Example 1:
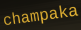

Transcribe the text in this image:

champaka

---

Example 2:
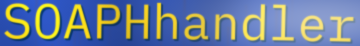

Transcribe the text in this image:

SOAPHhandler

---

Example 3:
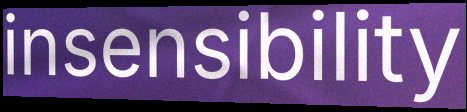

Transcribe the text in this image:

insensibility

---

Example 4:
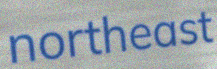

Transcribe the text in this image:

northeast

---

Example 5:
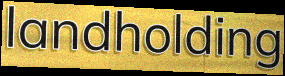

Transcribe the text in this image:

landholding